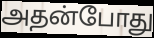
அதன்போது